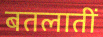
बतलातीं